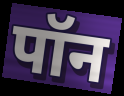
पॉन